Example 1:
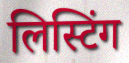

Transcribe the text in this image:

लिस्टिंग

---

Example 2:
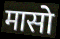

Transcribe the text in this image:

मासो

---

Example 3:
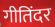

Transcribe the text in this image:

गीतिंदर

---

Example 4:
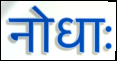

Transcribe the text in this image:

नोधाः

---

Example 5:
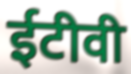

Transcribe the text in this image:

ईटीवी